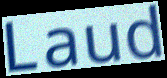
Laud